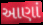
આણાં